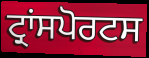
ਟ੍ਰਾਂਸਪੋਰਟਸ